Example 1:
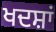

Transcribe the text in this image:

ਖਦਸ਼ਾਂ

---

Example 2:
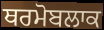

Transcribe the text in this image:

ਥਰਮੋਬਲਾਕ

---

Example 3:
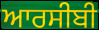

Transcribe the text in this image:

ਆਰਸੀਬੀ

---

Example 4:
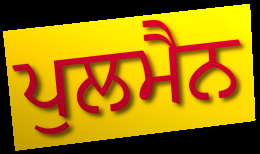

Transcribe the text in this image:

ਪੁਲਮੈਨ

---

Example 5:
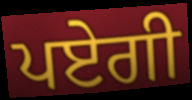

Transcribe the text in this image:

ਪਏਗੀ